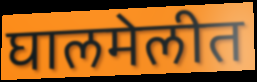
घालमेलीत